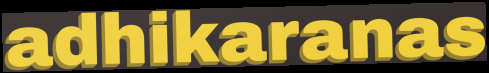
adhikaranas